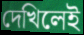
দেখিলেই